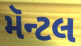
મૅન્ટલ